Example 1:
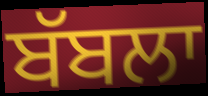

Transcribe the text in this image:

ਬੱਬਲਾ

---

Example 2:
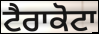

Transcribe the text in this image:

ਟੈਰਾਕੋਟਾ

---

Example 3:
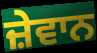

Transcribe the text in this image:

ਜ਼ੇਵਾਨ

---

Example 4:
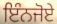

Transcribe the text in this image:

ਇੰਨਜੋਏ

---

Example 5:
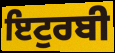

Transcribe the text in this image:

ਇਟੁਰਬੀ